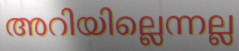
അറിയില്ലെന്നല്ല